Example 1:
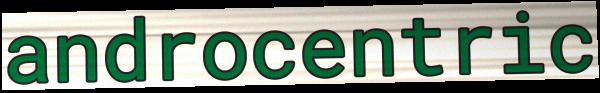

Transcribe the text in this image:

androcentric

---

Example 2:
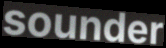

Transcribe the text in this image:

sounder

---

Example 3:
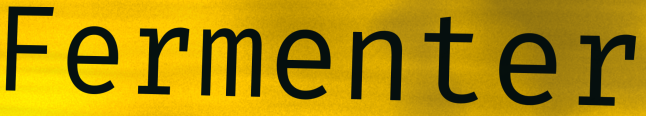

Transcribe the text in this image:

Fermenter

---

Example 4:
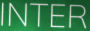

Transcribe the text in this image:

INTER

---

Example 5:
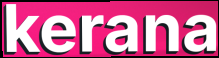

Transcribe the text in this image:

kerana